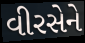
વીરસેને